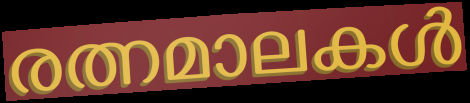
രത്നമാലകൾ